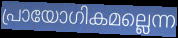
പ്രായോഗികമല്ലെന്ന